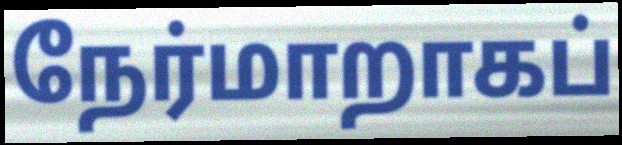
நேர்மாறாகப்